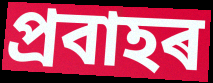
প্ৰবাহৰ